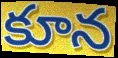
కూన